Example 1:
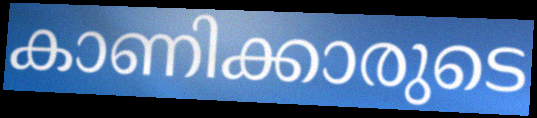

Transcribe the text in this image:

കാണിക്കാരുടെ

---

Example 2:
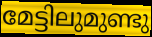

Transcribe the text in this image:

മേട്ടിലുമുണ്ടു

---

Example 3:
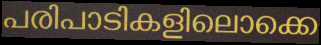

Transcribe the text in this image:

പരിപാടികളിലൊക്കെ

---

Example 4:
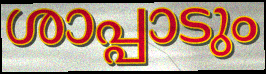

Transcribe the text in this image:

ശാപ്പാടും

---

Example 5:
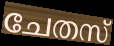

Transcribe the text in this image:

ചേതസ്